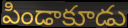
పిండాకూడు